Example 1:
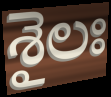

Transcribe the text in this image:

శైలః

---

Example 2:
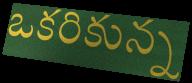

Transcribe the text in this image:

ఒకరికున్న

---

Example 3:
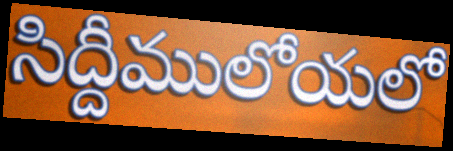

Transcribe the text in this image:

సిద్దీములోయలో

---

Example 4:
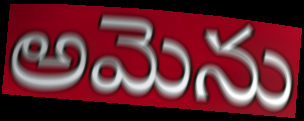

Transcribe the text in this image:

అమెను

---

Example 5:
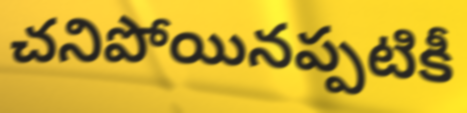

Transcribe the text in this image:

చనిపోయినప్పటికీ